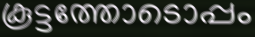
കൂട്ടത്തോടൊപ്പം